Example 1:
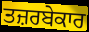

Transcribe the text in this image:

ਤਜ਼ਰਬੇਕਾਰ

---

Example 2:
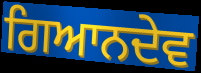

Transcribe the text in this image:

ਗਿਆਨਦੇਵ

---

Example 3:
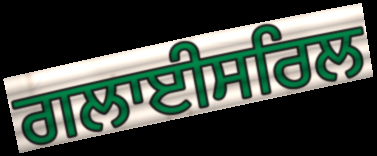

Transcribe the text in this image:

ਗਲਾਈਸਰਿਲ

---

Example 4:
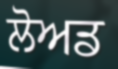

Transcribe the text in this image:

ਲੋਅਡ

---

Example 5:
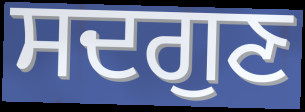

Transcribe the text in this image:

ਸਦਗੁਣ